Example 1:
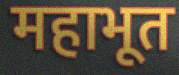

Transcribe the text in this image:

महाभूत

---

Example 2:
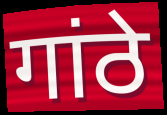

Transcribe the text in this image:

गांठे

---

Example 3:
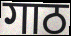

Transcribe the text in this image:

गाठ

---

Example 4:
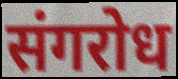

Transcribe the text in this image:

संगरोध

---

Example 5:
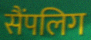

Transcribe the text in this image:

सैंपलिग